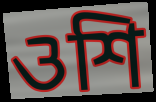
ওশি